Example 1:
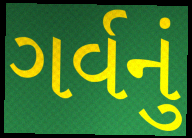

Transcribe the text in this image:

ગર્વનું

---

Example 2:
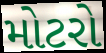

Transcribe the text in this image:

મોટરો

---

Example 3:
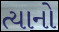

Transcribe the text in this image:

ત્યાનો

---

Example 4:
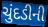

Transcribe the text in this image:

ચુંદડીની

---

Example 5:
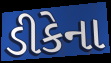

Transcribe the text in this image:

ડીકેના